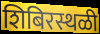
शिबिरस्थळी